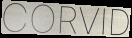
CORVID